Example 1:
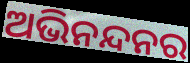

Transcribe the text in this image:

ଅଭିନନ୍ଦନର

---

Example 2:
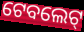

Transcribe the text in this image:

ଟେବଲେଟ୍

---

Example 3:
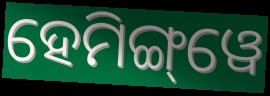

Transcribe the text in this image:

ହେମିଙ୍ଗ୍‌ୱେ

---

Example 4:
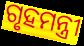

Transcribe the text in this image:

ଗୃହମନ୍ତ୍ରୀ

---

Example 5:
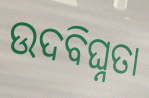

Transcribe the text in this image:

ଉଦବିଘ୍ନତା